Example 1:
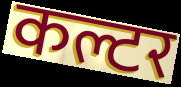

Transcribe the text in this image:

कल्टर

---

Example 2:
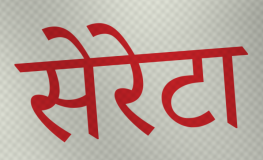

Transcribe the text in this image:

सेरेटा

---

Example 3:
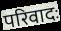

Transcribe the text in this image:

परिवादः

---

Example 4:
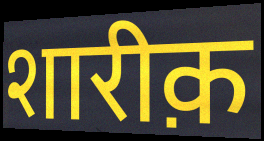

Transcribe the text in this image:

शारीक़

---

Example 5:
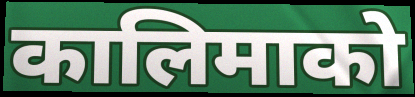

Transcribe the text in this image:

कालिमाको